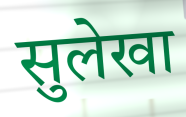
सुलेखा